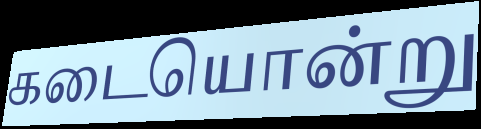
கடையொன்று